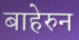
बाहेरुन